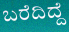
ಬರೆದಿದ್ದೆ